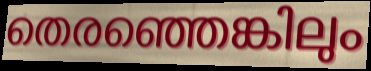
തെരഞ്ഞെങ്കിലും